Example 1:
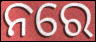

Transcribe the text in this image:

ନରେ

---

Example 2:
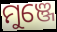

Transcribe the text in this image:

ମୁଞ୍ଜେ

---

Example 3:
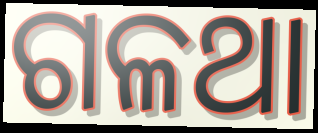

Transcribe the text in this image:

ଗଳଥା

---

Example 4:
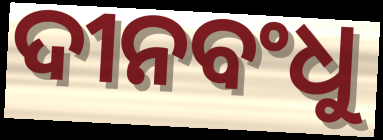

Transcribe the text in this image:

ଦୀନବଂଧୁ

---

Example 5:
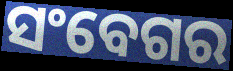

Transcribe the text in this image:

ସଂବେଗର